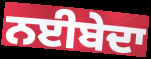
ਨਈਬੇਦਾ